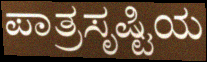
ಪಾತ್ರಸೃಷ್ಟಿಯ